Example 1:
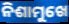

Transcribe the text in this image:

ନିଶାମୁଖେ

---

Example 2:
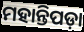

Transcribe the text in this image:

ମହାନ୍ତିପଡ଼ା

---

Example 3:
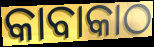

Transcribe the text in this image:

କାବାକାଠ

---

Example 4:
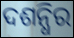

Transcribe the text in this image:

ଦଶନ୍ଧିର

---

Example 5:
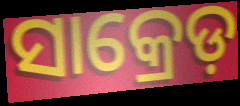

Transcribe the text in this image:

ସାକ୍ରେଡ଼